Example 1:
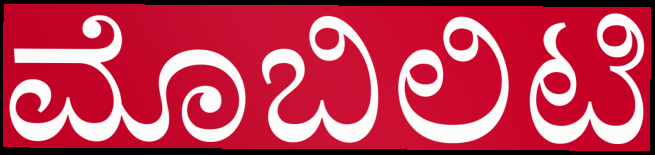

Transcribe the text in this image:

ಮೊಬಿಲಿಟಿ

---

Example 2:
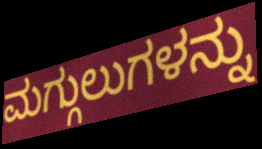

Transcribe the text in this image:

ಮಗ್ಗುಲುಗಳನ್ನು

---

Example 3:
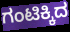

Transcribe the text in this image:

ಗಂಟಿಕ್ಕಿದ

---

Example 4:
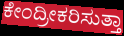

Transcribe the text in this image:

ಕೇಂದ್ರೀಕರಿಸುತ್ತಾ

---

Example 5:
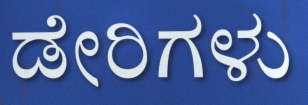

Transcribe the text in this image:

ಡೇರಿಗಳು